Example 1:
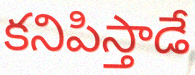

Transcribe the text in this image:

కనిపిస్తాడే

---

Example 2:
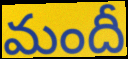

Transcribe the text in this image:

మందీ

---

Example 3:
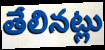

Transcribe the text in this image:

తేలినట్లు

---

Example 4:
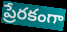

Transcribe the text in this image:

ప్రేరకంగా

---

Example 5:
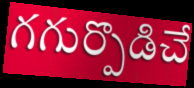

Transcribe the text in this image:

గగుర్పొడిచే